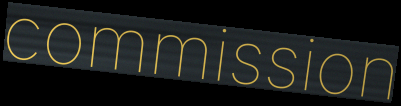
commission